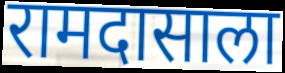
रामदासाला